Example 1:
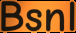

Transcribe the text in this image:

Bsnl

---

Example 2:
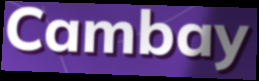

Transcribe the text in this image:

Cambay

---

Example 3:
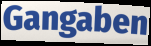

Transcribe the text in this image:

Gangaben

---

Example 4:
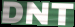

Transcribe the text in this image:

DNT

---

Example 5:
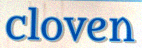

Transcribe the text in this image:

cloven